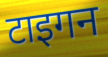
टाइगन